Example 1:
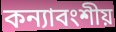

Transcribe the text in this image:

কন্যাবংশীয়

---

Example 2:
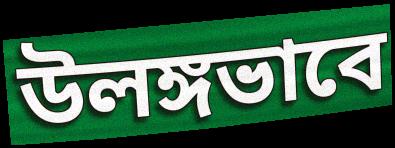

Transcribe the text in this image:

উলঙ্গভাবে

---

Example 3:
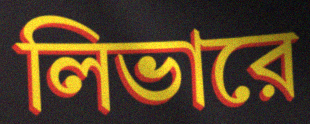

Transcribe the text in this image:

লিভারে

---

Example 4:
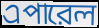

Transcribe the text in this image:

এপারেল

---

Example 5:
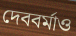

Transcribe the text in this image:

দেববর্মাও